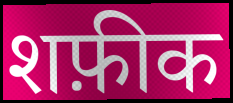
शफ़ीक